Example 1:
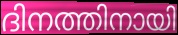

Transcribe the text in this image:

ദിനത്തിനായി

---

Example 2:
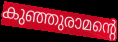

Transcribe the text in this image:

കുഞ്ഞുരാമന്റെ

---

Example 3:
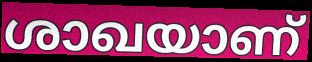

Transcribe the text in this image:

ശാഖയാണ്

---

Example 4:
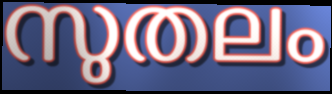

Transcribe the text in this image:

സുതലം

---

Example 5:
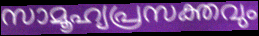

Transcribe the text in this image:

സാമൂഹ്യപ്രസക്തവും